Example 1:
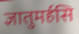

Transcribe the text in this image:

ज्ञातुमर्हसि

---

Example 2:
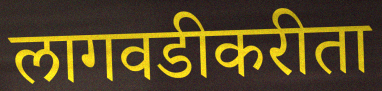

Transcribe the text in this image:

लागवडीकरीता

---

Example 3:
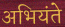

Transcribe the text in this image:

अभियंते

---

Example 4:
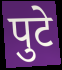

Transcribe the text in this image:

पुटे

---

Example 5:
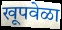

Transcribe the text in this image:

खूपवेळा